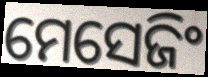
ମେସେଜିଂ